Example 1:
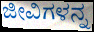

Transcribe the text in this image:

ಜೀವಿಗಳನ್ನ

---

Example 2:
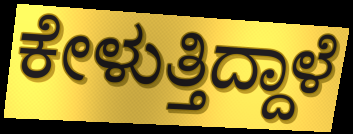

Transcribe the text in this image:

ಕೇಳುತ್ತಿದ್ದಾಳೆ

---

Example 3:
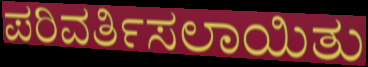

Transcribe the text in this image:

ಪರಿವರ್ತಿಸಲಾಯಿತು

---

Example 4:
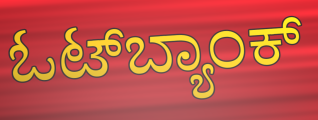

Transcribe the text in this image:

ಓಟ್‌ಬ್ಯಾಂಕ್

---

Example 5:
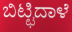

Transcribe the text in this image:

ಬಿಟ್ಟಿದಾಳೆ